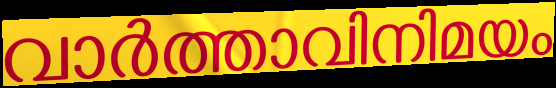
വാർത്താവിനിമയം